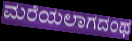
ಮರೆಯಲಾಗದಂಥ